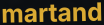
martand